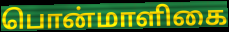
பொன்மாளிகை